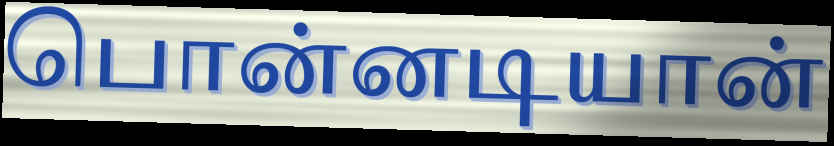
பொன்னடியான்